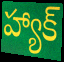
హ్యాక్